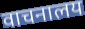
वाचनालय